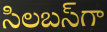
సిలబస్‌గా